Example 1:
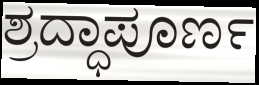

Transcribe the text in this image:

ಶ್ರದ್ಧಾಪೂರ್ಣ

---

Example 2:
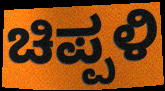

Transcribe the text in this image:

ಚಿಪ್ಪಳಿ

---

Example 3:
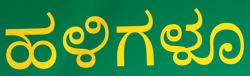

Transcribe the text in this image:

ಹಳಿಗಳೂ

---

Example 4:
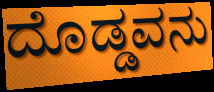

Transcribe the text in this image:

ದೊಡ್ಡವನು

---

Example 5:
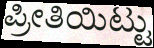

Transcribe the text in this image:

ಪ್ರೀತಿಯಿಟ್ಟು